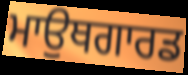
ਮਾਉਥਗਾਰਡ